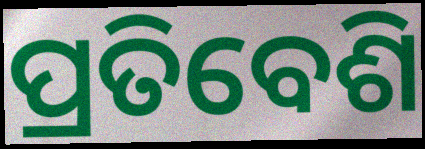
ପ୍ରତିବେଶି